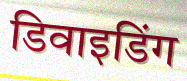
डिवाइडिंग